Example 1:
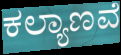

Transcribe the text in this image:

ಕಲ್ಯಾಣವೆ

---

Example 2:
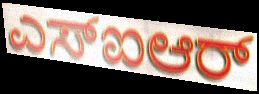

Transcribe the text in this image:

ಎಸ್ಐಆರ್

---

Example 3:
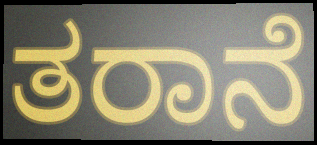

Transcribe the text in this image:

ತರಾನೆ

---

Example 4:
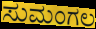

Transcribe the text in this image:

ಸುಮಂಗಲ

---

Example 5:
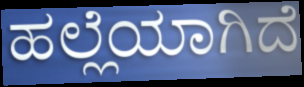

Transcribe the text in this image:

ಹಲ್ಲೆಯಾಗಿದೆ